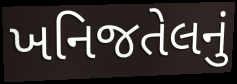
ખનિજતેલનું